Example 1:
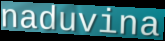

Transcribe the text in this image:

naduvina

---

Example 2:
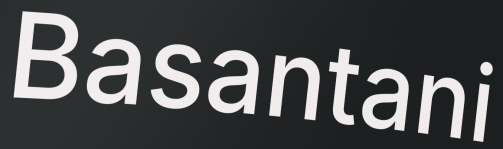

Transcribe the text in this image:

Basantani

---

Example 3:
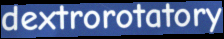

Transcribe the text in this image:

dextrorotatory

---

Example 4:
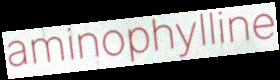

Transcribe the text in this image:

aminophylline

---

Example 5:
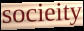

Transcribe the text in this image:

socieity